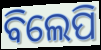
ବିଲେପି